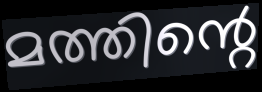
മത്തിന്റെ